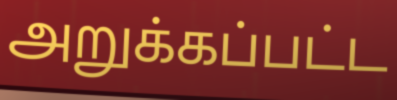
அறுக்கப்பட்ட